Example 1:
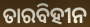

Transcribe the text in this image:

ତାରବିହୀନ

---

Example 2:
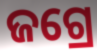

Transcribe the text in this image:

ଜଗ୍ରେ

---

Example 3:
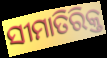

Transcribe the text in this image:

ସୀମାତିରିକ୍ତ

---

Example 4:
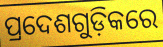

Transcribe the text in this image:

ପ୍ରଦେଶଗୁଡ଼ିକରେ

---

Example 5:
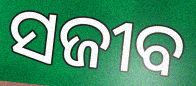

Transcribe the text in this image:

ସଜୀବ